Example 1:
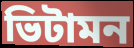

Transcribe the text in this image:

ভিটামন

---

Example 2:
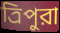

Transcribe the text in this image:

ত্রিপুরা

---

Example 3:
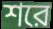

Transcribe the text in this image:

শরে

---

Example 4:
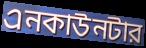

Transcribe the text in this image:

এনকাউনটার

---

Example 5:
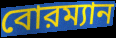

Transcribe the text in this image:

বোরম্যান